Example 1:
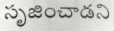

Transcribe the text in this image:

సృజించాడని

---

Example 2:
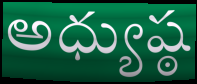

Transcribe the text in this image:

అధ్యుష్ఠ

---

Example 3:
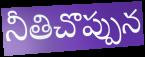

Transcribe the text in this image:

నీతిచొప్పున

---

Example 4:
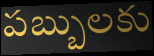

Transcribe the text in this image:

పబ్బులకు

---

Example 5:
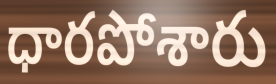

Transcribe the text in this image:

ధారపోశారు